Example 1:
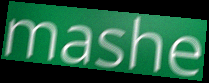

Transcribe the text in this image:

mashe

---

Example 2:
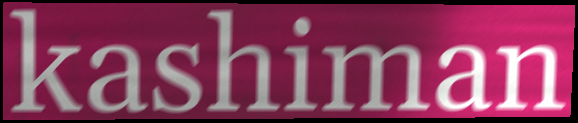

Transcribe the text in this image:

kashiman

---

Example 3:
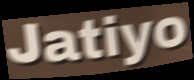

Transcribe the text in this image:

Jatiyo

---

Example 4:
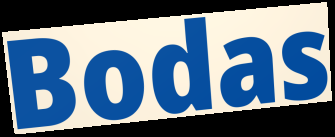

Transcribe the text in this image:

Bodas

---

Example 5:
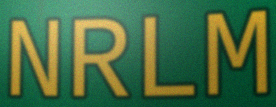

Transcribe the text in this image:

NRLM